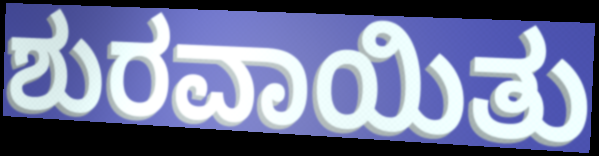
ಶುರವಾಯಿತು